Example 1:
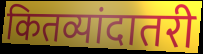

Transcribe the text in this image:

कितव्यांदातरी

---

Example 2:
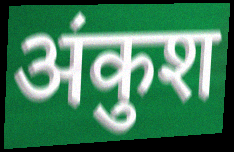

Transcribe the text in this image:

अंकुश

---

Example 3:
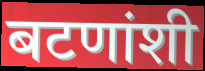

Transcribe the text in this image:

बटणांशी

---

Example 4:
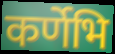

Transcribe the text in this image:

कर्णेभि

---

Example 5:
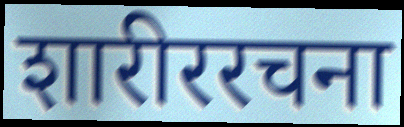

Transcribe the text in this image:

शारीररचना